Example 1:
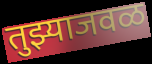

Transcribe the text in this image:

तुझ्याजवळ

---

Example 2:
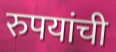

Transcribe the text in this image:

रुपयांची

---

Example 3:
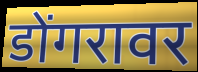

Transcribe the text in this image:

डोंगरावर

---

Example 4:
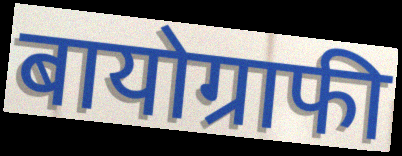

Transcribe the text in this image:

बायोग्राफी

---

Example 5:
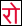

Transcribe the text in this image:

रो